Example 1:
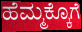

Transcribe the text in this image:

ಹೆಮ್ಮಕ್ಕೊಗೆ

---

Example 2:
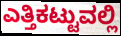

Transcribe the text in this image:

ಎತ್ತಿಕಟ್ಟುವಲ್ಲಿ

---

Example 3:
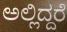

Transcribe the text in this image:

ಅಲ್ಲಿದ್ದರೆ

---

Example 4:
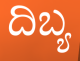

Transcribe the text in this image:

ದಿಬ್ಯ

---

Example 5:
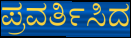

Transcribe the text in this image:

ಪ್ರವರ್ತಿಸಿದ